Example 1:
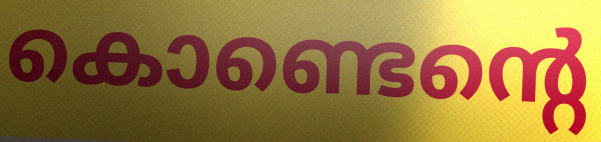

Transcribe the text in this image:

കൊണ്ടെന്റെ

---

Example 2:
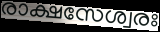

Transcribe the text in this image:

രാക്ഷസേശ്വരഃ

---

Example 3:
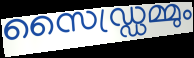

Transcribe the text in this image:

സൈഡ്ഡ്രമ്മും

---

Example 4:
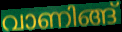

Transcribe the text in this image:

വാണിങ്ങ്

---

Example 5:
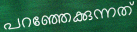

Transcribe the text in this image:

പറഞ്ഞേക്കുന്നത്